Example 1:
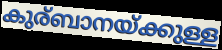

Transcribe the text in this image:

കുര്ബാനയ്ക്കുള്ള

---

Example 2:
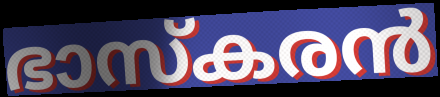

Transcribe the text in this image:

ഭാസ്കരൻ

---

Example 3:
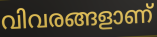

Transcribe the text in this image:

വിവരങ്ങളാണ്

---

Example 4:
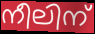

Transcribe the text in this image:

നീലിന്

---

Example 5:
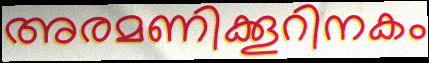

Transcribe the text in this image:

അരമണിക്കൂറിനകം